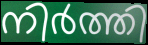
നിർത്തി